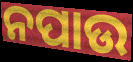
ନପାଉ